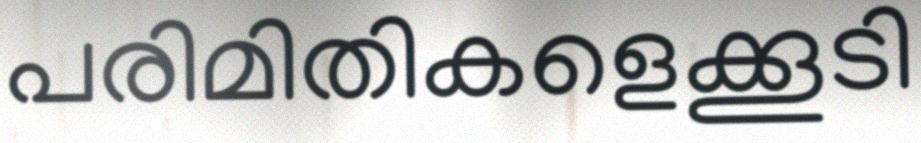
പരിമിതികളെക്കൂടി